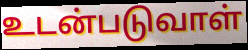
உடன்படுவாள்